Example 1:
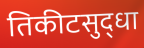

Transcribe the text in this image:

तिकीटसुद्धा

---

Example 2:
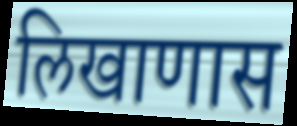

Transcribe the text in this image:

लिखाणास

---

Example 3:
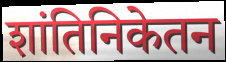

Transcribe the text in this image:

शांतिनिकेतन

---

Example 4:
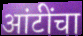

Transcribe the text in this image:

आंटींचा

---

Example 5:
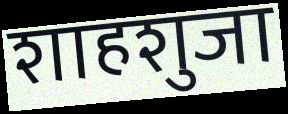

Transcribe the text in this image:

शाहशुजा